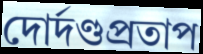
দোর্দণ্ডপ্রতাপ